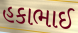
હકાભાઈ